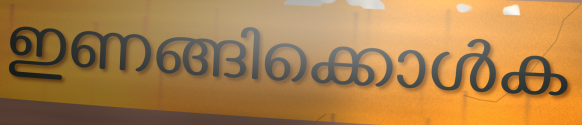
ഇണങ്ങിക്കൊൾക